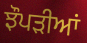
ਝੌਪੜੀਆਂ